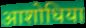
आशोधिया